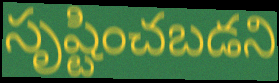
సృష్టించబడని